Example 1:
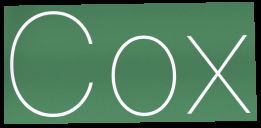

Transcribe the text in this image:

Cox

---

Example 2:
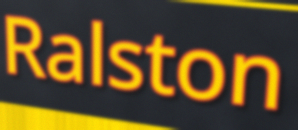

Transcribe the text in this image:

Ralston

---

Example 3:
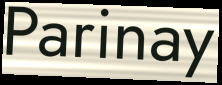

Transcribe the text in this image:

Parinay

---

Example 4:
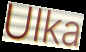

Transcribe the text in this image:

Ulka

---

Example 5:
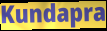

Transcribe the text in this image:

Kundapra